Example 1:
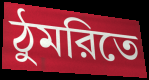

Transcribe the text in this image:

ঠুমরিতে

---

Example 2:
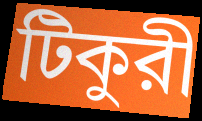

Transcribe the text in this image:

টিকুরী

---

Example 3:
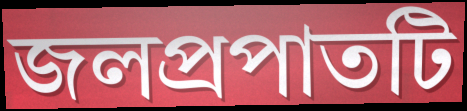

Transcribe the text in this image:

জলপ্রপাতটি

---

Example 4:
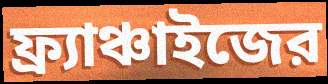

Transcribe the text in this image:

ফ্র্যাঞ্চাইজের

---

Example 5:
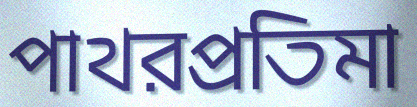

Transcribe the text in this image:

পাথরপ্রতিমা